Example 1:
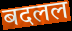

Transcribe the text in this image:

बदलल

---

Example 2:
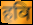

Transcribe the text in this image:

हवि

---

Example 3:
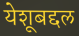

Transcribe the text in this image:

येशूबद्दल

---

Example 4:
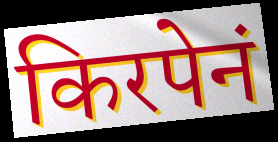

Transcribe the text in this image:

किरपेनं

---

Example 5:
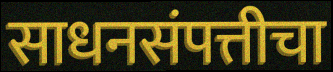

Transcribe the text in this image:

साधनसंपत्तीचा